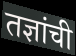
तज्ञांची